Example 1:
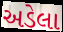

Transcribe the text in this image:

અડેલા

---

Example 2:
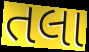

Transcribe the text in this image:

તલા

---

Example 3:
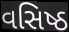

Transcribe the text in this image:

વસિષ્ઠ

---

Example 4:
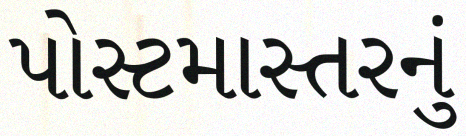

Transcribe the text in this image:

પોસ્ટમાસ્તરનું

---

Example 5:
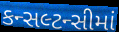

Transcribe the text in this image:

કન્સલ્ટન્સીમાં